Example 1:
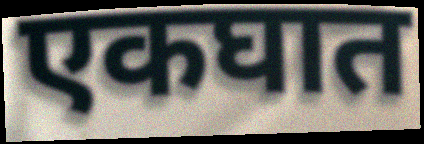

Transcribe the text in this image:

एकघात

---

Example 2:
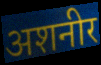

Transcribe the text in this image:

अशनीर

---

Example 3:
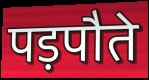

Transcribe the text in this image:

पड़पौते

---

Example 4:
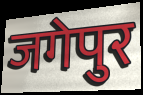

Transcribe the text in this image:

जगेपुर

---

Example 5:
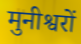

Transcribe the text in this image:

मुनीश्वरों